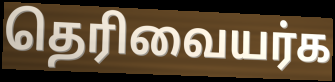
தெரிவையர்க